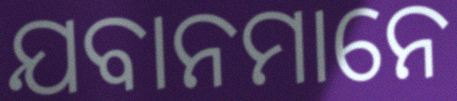
ଯବାନମାନେ